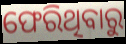
ଫେରିଥିବାରୁ